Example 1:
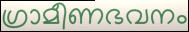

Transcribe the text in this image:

ഗ്രാമീണഭവനം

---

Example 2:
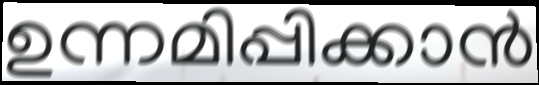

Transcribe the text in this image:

ഉന്നമിപ്പിക്കാൻ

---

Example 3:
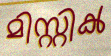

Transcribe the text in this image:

മിസ്റ്റിൿ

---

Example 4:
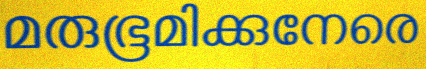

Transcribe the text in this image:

മരുഭൂമിക്കുനേരെ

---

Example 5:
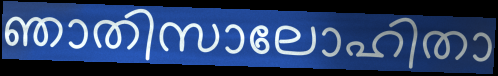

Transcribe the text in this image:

ഞാതിസാലോഹിതാ